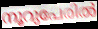
നൂറുപേരിൽ